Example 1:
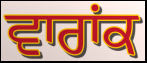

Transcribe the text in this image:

ਵਾਰਾਂਕ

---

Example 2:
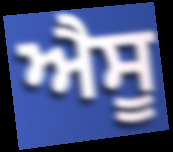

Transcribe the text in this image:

ਐਸੂ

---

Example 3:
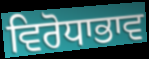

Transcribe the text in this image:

ਵਿਰੋਧਾਭਾਵ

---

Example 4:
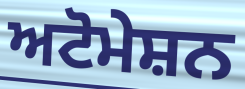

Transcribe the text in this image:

ਅਟੋਮੇਸ਼ਨ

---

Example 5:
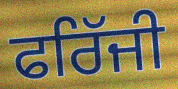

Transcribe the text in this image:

ਫਰਿੱਜੀ